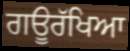
ਗਊਰੱਖਿਆ